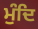
ਮੁੰਦਿ